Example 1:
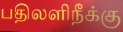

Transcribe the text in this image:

பதிலளிநீக்கு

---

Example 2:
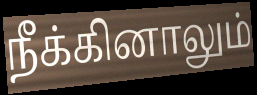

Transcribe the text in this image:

நீக்கினாலும்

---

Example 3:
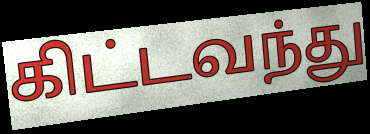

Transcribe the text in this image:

கிட்டவந்து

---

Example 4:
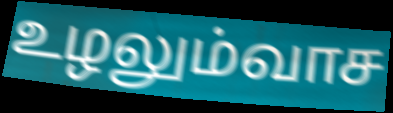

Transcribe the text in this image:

உழலும்வாச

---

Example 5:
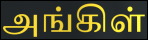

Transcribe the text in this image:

அங்கிள்